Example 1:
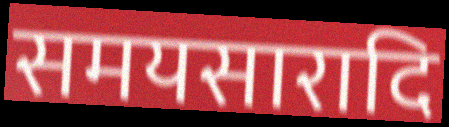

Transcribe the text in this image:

समयसारादि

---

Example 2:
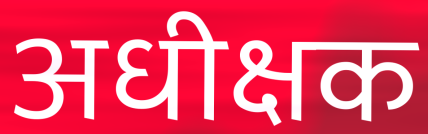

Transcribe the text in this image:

अधीक्षक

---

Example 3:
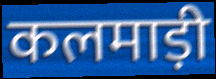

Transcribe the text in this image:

कलमाड़ी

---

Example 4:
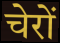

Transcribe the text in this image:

चेरों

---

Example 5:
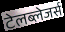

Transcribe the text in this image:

टेलब्लेजर्स